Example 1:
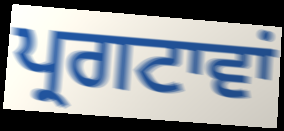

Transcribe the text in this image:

ਪ੍ਰਗਟਾਵਾਂ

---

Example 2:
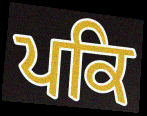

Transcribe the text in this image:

ਪਕਿ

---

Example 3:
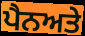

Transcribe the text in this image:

ਪੈਨਅਤੇ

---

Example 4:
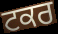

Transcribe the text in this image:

ਟਕਰ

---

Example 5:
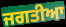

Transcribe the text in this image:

ਜਗਤੀਆ